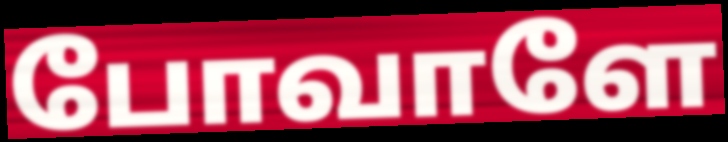
போவாளே